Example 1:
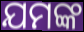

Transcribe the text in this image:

ଯମଙ୍କ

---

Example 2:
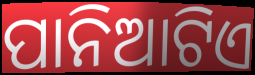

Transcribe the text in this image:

ପାନିଆଟିଏ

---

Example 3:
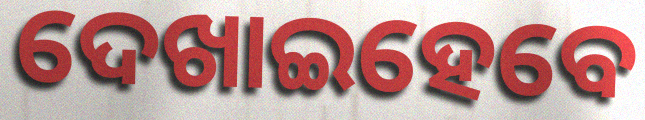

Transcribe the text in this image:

ଦେଖାଇହେବେ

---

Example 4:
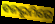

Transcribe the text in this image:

ବନଭୂମିରେ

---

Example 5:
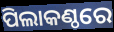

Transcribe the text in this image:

ପିଲାକଣ୍ଠରେ